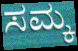
ಸಮ್ಕ